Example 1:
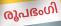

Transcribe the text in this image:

രൂപഭംഗി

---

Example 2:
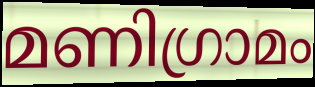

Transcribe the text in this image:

മണിഗ്രാമം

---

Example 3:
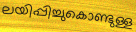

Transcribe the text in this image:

ലയിപ്പിച്ചുകൊണ്ടുള്ള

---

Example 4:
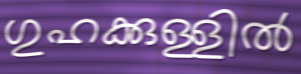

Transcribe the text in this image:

ഗുഹക്കുള്ളിൽ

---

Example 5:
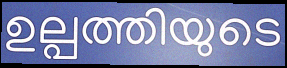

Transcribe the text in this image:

ഉല്പത്തിയുടെ